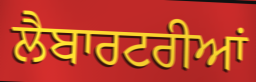
ਲੈਬਾਰਟਰੀਆਂ